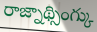
రాజ్నాథ్సింగ్కు